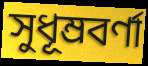
সুধূম্রবর্ণা